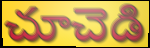
చూచెడి